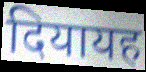
दियायह